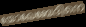
യോഖേബേദിനെ